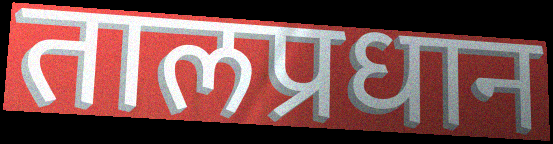
तालप्रधान